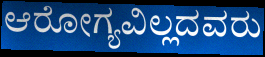
ಆರೋಗ್ಯವಿಲ್ಲದವರು